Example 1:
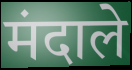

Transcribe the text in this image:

मंदाले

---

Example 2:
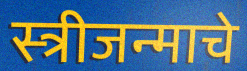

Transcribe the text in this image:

स्त्रीजन्माचे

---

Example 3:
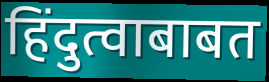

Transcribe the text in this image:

हिंदुत्वाबाबत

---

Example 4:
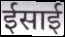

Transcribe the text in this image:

ईसाई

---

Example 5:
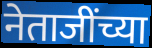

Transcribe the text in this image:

नेताजींच्या